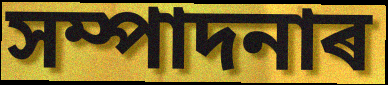
সম্পাদনাৰ